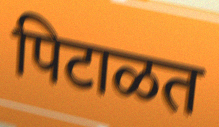
पिटाळत